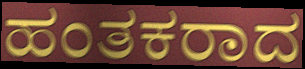
ಹಂತಕರಾದ